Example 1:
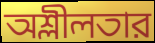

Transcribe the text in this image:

অশ্লীলতার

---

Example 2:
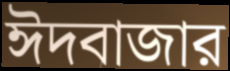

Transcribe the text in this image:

ঈদবাজার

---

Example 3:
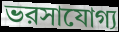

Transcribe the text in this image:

ভরসাযোগ্য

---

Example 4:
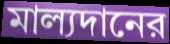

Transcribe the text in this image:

মাল্যদানের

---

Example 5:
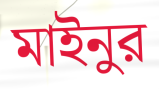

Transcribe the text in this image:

মাইনুর